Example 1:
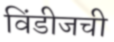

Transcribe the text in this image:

विंडीजची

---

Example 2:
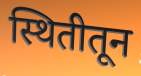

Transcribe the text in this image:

स्थितीतून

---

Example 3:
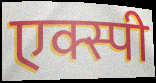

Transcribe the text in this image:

एक्स्पी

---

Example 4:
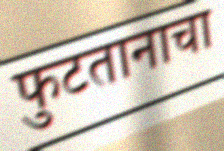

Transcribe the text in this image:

फुटतानाचा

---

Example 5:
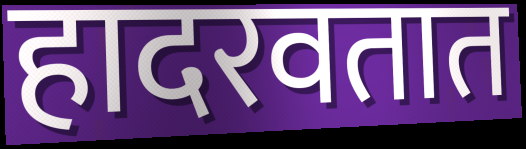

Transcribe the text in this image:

हादरवतात